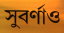
সুবর্ণাও